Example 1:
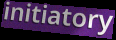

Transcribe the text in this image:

initiatory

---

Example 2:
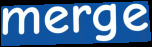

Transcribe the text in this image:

merge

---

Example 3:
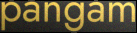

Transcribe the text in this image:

pangam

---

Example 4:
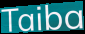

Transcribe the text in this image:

Taiba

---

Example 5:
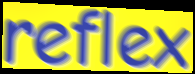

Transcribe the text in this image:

reflex